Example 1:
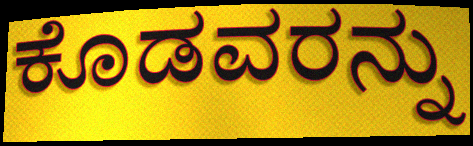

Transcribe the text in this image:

ಕೊಡವರನ್ನು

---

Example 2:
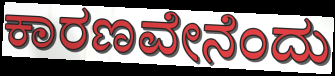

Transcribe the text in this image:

ಕಾರಣವೇನೆಂದು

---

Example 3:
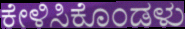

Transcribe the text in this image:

ಕೇಳಿಸಿಕೊಂಡಳು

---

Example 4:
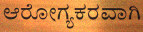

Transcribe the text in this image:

ಆರೋಗ್ಯಕರವಾಗಿ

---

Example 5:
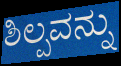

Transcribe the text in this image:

ಶಿಲ್ಪವನ್ನು